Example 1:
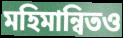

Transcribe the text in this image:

মহিমান্বিতও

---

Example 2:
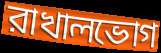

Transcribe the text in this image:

রাখালভোগ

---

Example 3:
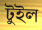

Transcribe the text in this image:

টুইল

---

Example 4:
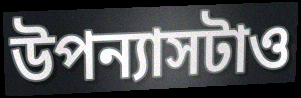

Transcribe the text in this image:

উপন্যাসটাও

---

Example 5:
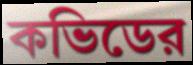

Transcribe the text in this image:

কভিডের